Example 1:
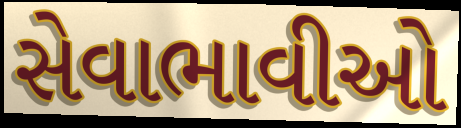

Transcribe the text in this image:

સેવાભાવીઓ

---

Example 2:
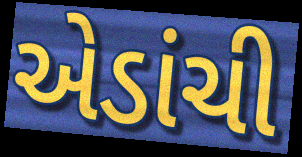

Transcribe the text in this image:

એડાંચી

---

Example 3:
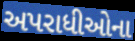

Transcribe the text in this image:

અપરાધીઓના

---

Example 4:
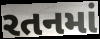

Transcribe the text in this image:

રતનમાં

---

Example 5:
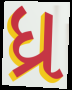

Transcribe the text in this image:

ધ્ર